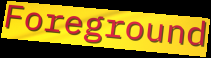
Foreground